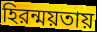
হিরন্ময়তায়